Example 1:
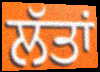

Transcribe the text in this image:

ਲੱਤਾਂ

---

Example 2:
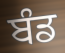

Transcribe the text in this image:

ਬੰਡ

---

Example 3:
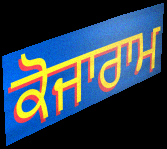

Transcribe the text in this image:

ਕੋਜਾਰਾਮ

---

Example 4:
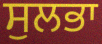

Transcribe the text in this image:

ਸੁਲਭਾ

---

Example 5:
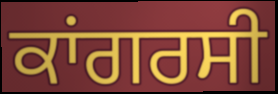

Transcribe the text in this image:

ਕਾਂਗਰਸੀ